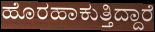
ಹೊರಹಾಕುತ್ತಿದ್ದಾರೆ